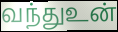
வந்துஉன்